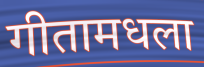
गीतामधला